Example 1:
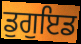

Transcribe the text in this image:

ਡੁਗੁਇਡ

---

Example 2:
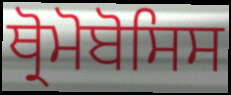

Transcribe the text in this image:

ਥ੍ਰੋਮੋਬੋਸਿਸ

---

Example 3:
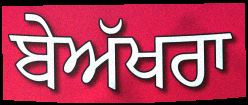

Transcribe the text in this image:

ਬੇਅੱਖਰਾ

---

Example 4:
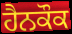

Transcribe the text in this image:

ਹੈਨਕੌਕ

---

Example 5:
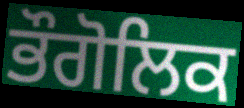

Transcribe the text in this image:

ਭੌਗੋਲਿਕ